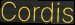
Cordis